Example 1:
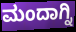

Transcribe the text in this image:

ಮಂದಾಗ್ನಿ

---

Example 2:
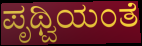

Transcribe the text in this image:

ಪೃಥ್ವಿಯಂತೆ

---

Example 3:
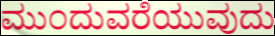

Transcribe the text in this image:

ಮುಂದುವರೆಯುವುದು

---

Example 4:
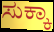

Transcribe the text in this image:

ಸುಕ್ಕಾ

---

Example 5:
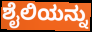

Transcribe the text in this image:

ಶೈಲಿಯನ್ನು